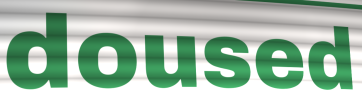
doused